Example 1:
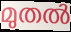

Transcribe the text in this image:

മുതൽ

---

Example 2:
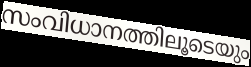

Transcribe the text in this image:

സംവിധാനത്തിലൂടെയും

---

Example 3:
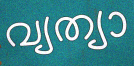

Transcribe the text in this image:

വ്യത്യാ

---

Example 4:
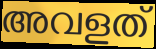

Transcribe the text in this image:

അവളത്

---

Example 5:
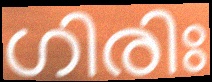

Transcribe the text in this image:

ഗിരിഃ